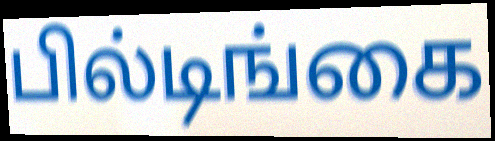
பில்டிங்கை